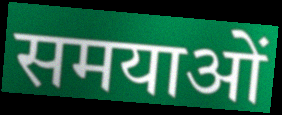
समयाओं